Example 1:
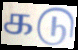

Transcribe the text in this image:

கடு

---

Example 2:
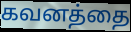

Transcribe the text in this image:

கவனத்தை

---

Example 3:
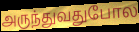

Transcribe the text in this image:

அருந்துவதுபோல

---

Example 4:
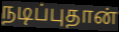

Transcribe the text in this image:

நடிப்புதான்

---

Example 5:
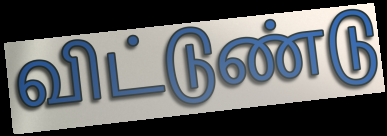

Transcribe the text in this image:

விட்டுண்டு